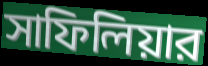
সাফিলিয়ার